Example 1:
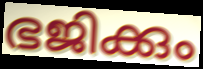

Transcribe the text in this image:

ഭജിക്കും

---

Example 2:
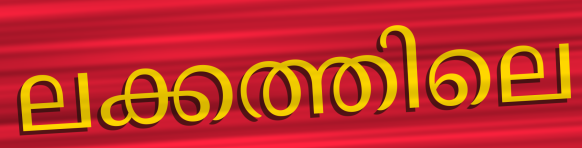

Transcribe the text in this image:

ലക്കത്തിലെ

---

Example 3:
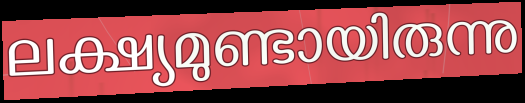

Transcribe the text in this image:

ലക്ഷ്യമുണ്ടായിരുന്നു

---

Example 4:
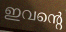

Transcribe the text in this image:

ഇവന്റെ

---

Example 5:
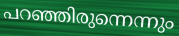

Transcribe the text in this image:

പറഞ്ഞിരുന്നെന്നും